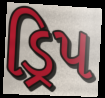
ડ્રિપ